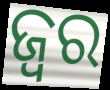
ଜ୍ବର